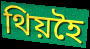
থিয়হৈ